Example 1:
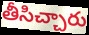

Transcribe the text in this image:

తీసిచ్చారు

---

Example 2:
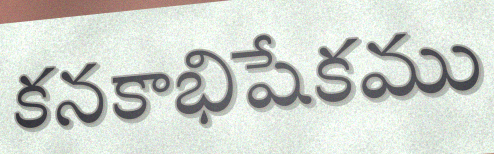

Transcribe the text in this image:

కనకాభిషేకము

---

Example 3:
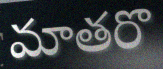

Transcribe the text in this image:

మాతరొ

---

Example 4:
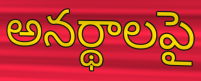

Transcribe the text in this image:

అనర్థాలపై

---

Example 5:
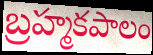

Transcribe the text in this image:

బ్రహ్మకపాలం